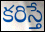
కరిస్తే